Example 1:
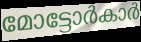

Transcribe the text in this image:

മോട്ടോർകാർ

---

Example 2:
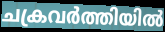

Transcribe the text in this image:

ചക്രവർത്തിയിൽ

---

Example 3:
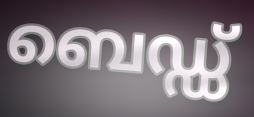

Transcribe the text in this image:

ബെഡ്ഡ്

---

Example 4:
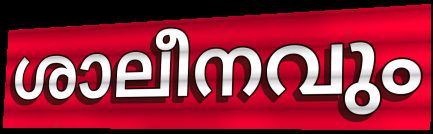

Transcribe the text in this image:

ശാലീനവും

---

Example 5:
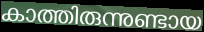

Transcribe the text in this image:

കാത്തിരുന്നുണ്ടായ